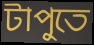
টাপুতে